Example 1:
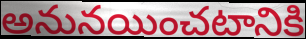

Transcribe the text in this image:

అనునయించటానికి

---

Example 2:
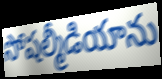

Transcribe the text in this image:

సోషల్మీడియాను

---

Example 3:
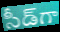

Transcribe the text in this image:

సీడ్‌గా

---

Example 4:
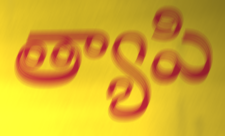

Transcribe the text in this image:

త్యాపి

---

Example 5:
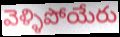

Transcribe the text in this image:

వెళ్ళిపోయేరు